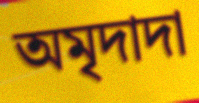
অমৃদাদা